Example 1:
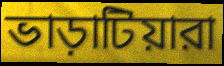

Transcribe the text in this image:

ভাড়াটিয়ারা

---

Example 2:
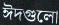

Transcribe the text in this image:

ঈদগুলো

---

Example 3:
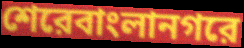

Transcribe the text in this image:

শেরেবাংলানগরে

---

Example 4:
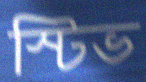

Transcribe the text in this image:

স্টিভ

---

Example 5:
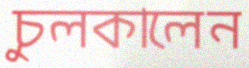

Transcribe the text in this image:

চুলকালেন